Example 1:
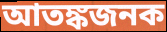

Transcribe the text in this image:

আতঙ্কজনক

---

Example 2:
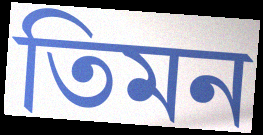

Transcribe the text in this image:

তিমন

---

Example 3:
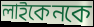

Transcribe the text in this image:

লাইকেনকে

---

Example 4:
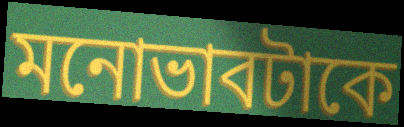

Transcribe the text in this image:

মনোভাবটাকে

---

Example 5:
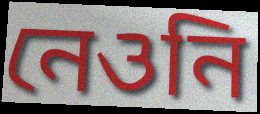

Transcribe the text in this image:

নেওনি